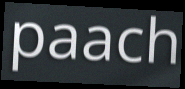
paach